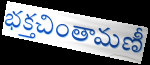
భక్తచింతామణీ